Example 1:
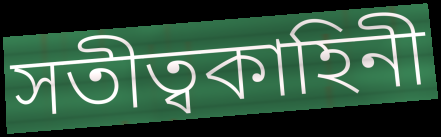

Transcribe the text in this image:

সতীত্বকাহিনী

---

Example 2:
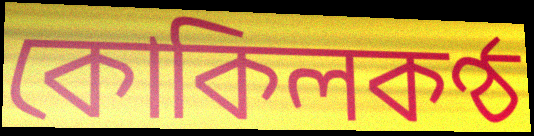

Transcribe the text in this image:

কোকিলকণ্ঠ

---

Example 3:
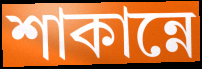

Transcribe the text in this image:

শাকান্নে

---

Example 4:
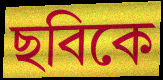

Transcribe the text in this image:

ছবিকে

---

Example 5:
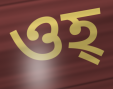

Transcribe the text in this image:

ওহ্